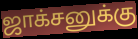
ஜாக்சனுக்கு